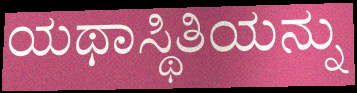
ಯಥಾಸ್ಥಿತಿಯನ್ನು